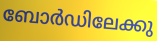
ബോർഡിലേക്കു